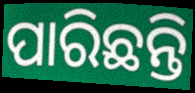
ପାରିଛନ୍ତି